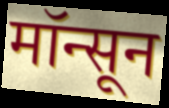
मॉन्सून